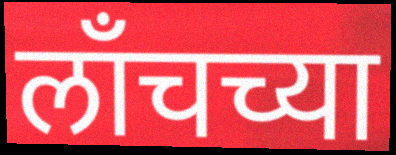
लाँचच्या